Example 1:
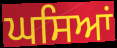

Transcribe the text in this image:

ਘਸਿਆਂ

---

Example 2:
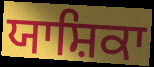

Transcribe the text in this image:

ਯਾਸ਼ਿਕਾ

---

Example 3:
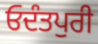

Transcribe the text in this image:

ਓਦੰਤਪੁਰੀ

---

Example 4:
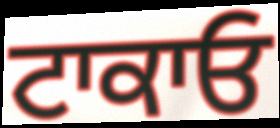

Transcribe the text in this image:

ਟਾਕਾਓ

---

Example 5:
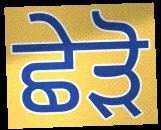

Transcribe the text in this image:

ਛੇੜੋ